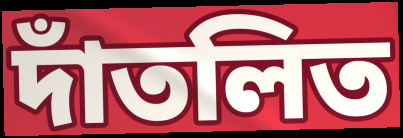
দাঁতলিত